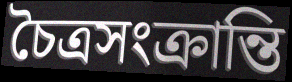
চৈত্রসংক্রান্তি